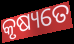
କୃଷ୍ୟତେ